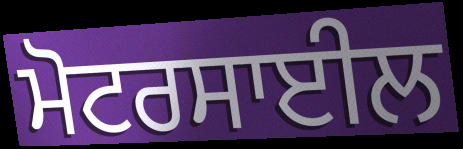
ਮੋਟਰਸਾਈਲ